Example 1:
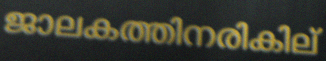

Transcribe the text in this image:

ജാലകത്തിനരികില്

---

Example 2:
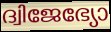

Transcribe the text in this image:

ദ്വിജേഭ്യോ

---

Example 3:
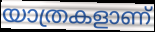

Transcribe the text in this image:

യാത്രകളാണ്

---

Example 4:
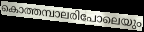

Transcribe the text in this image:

കൊത്തമ്പാലരിപോലെയും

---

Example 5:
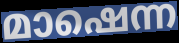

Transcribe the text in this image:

മാഷെന്ന